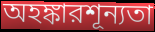
অহঙ্কারশূন্যতা